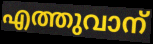
എത്തുവാന്